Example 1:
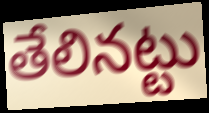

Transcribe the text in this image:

తేలినట్టు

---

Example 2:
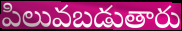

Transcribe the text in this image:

పిలువబడుతారు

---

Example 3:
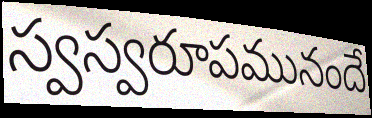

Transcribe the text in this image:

స్వస్వరూపమునందే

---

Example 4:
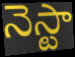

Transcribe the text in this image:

నెస్టా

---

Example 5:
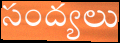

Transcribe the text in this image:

సంద్యలు